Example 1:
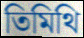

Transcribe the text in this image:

তিমিথি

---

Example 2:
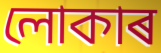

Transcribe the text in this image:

লোকাৰ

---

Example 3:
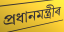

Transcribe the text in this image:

প্ৰধানমন্ত্ৰীৰ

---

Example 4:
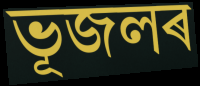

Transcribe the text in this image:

ভূজলৰ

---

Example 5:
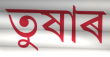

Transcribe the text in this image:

তুষাৰ